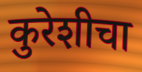
कुरेशीचा